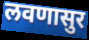
लवणासुर